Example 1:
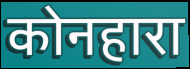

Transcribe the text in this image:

कोनहारा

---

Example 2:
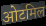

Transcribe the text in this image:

ओटमिल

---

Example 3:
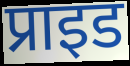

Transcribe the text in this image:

प्राइड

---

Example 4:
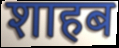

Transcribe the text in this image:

शाहब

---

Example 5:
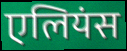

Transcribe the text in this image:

एलियंस